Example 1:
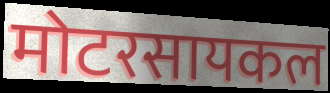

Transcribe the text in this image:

मोटरसायकल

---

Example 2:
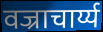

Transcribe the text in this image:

वज्राचार्य्य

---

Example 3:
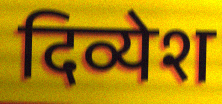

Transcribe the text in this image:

दिव्येश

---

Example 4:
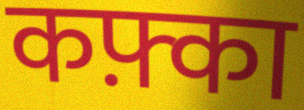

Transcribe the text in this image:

कफ़्का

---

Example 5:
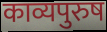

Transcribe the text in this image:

काव्यपुरुष